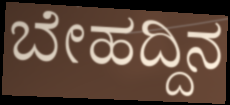
ಬೇಹದ್ದಿನ